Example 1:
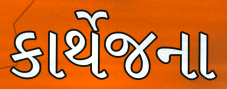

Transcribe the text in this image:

કાર્થેજના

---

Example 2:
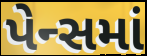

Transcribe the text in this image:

પેન્સમાં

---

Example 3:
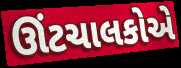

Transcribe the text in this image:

ઊંટચાલકોએ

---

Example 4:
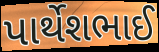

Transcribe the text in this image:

પાર્થેશભાઈ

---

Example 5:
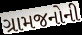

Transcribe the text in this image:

ગ્રામજનોની